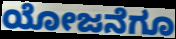
ಯೋಜನೆಗೂ